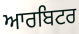
ਆਰਬਿਟਰ